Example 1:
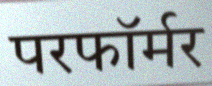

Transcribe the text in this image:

परफॉर्मर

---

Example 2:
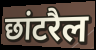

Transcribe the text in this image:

छांटरैल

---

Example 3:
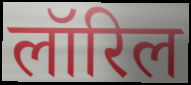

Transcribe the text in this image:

लॉरिल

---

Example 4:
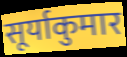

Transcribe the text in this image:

सूर्याकुमार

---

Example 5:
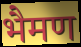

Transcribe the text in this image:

भैमण